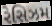
રેસિઝમ